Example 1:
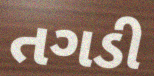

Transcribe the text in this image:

તગડી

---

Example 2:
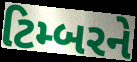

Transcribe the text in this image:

ટિમ્બરને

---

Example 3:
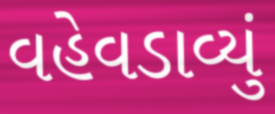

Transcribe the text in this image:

વહેવડાવ્યું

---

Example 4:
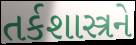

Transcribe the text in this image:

તર્કશાસ્ત્રને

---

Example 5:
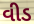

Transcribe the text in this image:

વીડ